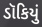
ડૉકિયું